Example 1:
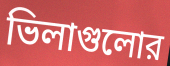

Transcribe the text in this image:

ভিলাগুলোর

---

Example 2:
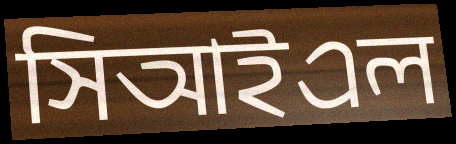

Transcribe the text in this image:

সিআইএল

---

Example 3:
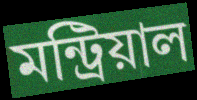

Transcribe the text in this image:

মন্ট্রিয়াল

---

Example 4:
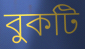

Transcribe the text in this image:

বুকটি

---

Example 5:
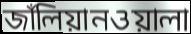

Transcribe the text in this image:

জাঁলিয়ানওয়ালা